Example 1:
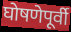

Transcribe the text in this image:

घोषणेपूर्वी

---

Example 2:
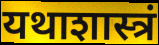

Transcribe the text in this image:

यथाशास्त्रं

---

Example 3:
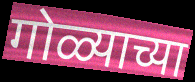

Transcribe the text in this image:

गोळ्याच्या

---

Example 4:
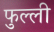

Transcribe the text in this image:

फुल्ली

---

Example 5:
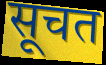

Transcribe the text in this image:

सूचत